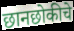
छानछोकीचे